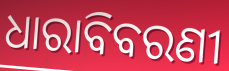
ଧାରାବିବରଣୀ